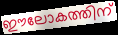
ഈലോകത്തിന്